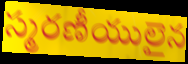
స్మరణీయులైన